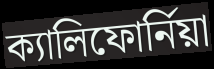
ক্যালিফোর্নিয়া